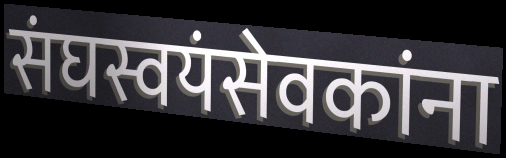
संघस्वयंसेवकांना